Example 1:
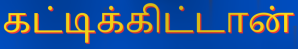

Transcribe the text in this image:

கட்டிக்கிட்டான்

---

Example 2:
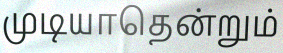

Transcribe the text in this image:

முடியாதென்றும்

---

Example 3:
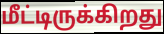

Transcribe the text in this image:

மீட்டிருக்கிறது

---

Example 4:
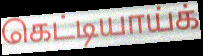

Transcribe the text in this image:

கெட்டியாய்க்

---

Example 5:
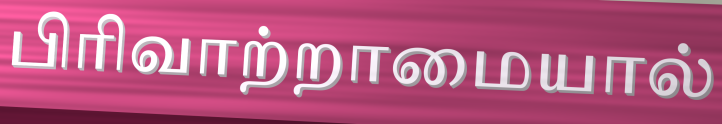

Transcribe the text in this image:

பிரிவாற்றாமையால்